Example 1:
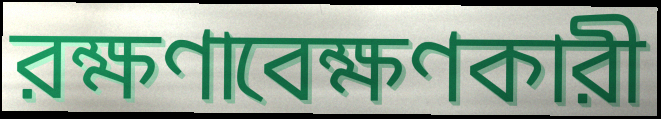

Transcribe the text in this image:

রক্ষণাবেক্ষণকারী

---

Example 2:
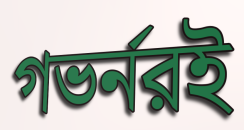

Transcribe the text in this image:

গভর্নরই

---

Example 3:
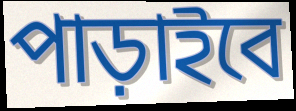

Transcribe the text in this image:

পাড়াইবে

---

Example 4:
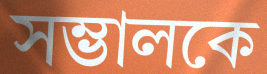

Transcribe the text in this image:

সম্ভালকে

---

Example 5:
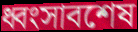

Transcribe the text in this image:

ধ্বংসাবশেষ